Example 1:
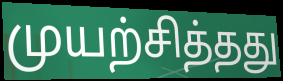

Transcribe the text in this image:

முயற்சித்தது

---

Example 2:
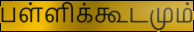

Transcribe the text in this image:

பள்ளிக்கூடமும்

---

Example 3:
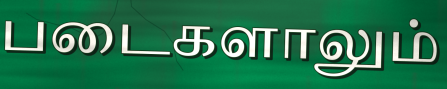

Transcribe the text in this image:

படைகளாலும்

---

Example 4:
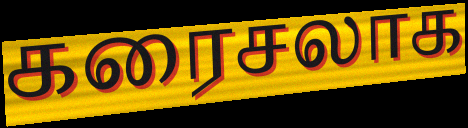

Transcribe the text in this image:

கரைசலாக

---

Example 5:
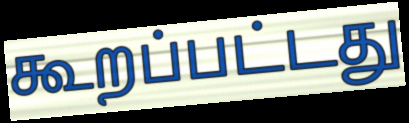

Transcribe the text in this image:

கூறப்பட்டது